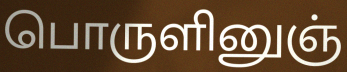
பொருளினுஞ்